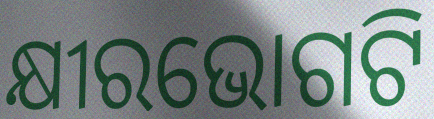
କ୍ଷୀରଭୋଗଟି